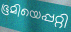
ഭൂമിയെപ്പറ്റി